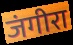
जंगीरा